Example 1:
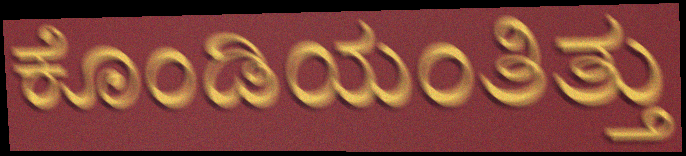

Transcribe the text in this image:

ಕೊಂಡಿಯಂತಿತ್ತು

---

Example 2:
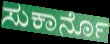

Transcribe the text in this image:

ಸುಕಾರ್ನೊ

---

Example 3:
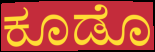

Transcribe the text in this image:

ಕೂಡೊ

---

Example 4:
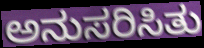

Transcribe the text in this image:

ಅನುಸರಿಸಿತು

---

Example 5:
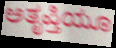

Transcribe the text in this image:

ಅತೃಪ್ತಿಯೂ